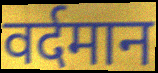
वर्दमान